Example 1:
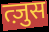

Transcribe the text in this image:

त्ज़ुस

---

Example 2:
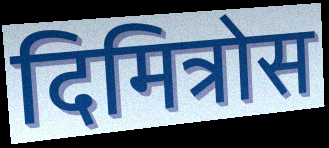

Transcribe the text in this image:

दिमित्रोस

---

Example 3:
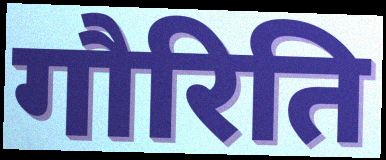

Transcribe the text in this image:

गौरिति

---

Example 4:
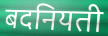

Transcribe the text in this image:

बदनियती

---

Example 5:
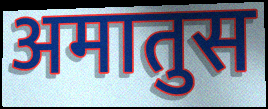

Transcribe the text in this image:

अमातुस